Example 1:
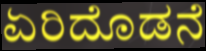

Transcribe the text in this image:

ಏರಿದೊಡನೆ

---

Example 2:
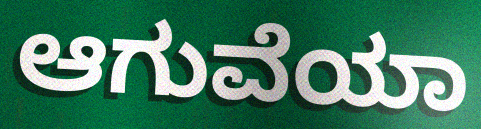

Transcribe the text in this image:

ಆಗುವೆಯಾ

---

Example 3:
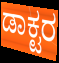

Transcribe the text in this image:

ಡಾಕ್ಟರ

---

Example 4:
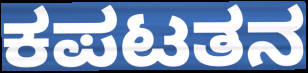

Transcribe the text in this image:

ಕಪಟತನ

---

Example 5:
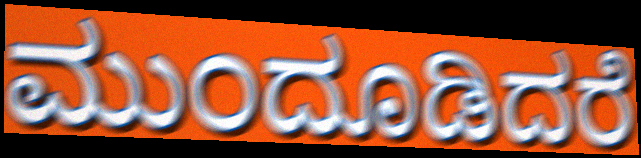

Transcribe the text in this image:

ಮುಂದೂಡಿದರೆ